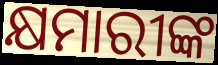
କ୍ଷମାରୀଙ୍କ